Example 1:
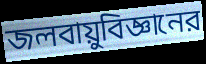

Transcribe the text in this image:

জলবায়ুবিজ্ঞানের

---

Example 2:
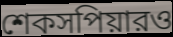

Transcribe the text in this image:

শেকসপিয়ারও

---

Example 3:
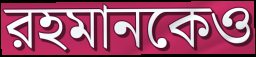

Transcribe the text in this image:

রহমানকেও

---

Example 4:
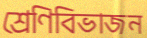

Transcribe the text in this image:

শ্রেণিবিভাজন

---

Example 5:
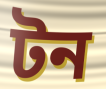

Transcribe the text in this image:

টন